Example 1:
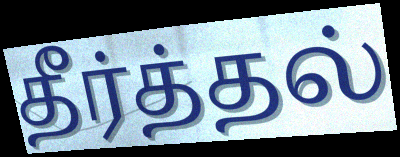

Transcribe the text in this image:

தீர்த்தல்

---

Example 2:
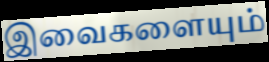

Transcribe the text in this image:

இவைகளையும்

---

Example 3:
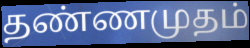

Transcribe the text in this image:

தண்ணமுதம்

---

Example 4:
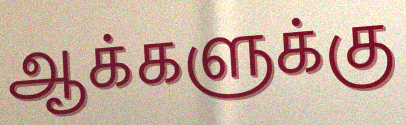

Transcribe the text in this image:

ஆக்களுக்கு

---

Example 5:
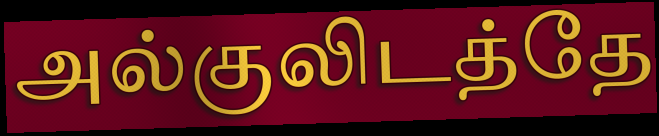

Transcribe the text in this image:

அல்குலிடத்தே